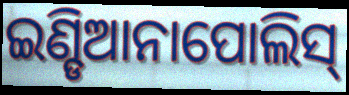
ଇଣ୍ଡିଆନାପୋଲିସ୍